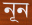
নূন